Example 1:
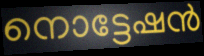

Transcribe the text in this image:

നൊട്ടേഷൻ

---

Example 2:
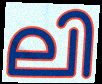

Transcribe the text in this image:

ലി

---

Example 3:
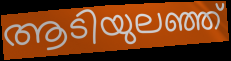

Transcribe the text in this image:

ആടിയുലഞ്ഞ്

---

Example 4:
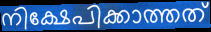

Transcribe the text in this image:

നിക്ഷേപിക്കാത്തത്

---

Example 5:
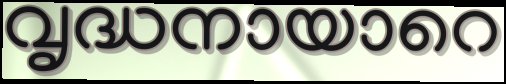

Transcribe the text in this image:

വൃദ്ധനായാറെ